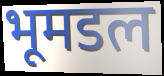
भूमडल